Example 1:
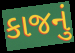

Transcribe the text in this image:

કાજનું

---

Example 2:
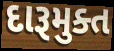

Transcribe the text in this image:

દારૂમુક્ત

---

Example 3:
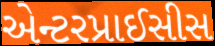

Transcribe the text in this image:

એન્ટરપ્રાઈસીસ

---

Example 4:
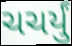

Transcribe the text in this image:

ચચર્યું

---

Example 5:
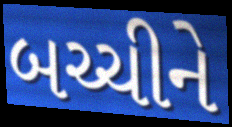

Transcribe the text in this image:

બચ્ચીને